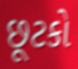
છૂટકો